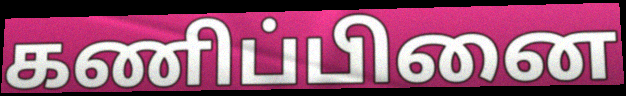
கணிப்பினை